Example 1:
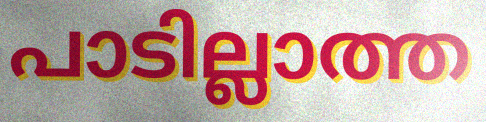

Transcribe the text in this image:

പാടില്ലാത്ത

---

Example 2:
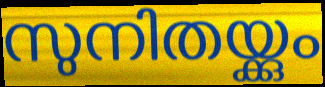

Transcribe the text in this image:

സുനിതയ്ക്കും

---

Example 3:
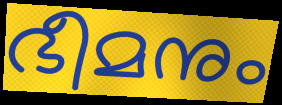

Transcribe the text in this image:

ഭീമനും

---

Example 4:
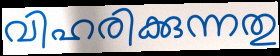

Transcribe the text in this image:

വിഹരിക്കുന്നതു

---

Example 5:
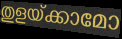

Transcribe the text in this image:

തുളയ്‌ക്കാമോ